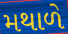
મથાળે